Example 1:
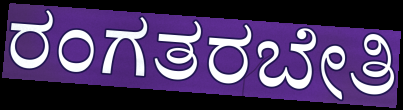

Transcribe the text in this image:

ರಂಗತರಬೇತಿ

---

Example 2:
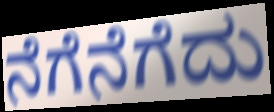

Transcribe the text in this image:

ನೆಗೆನೆಗೆದು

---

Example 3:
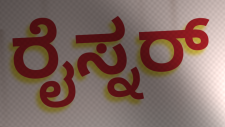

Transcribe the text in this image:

ರೈಸ್ನರ್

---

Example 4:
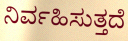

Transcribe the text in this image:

ನಿರ್ವಹಿಸುತ್ತದೆ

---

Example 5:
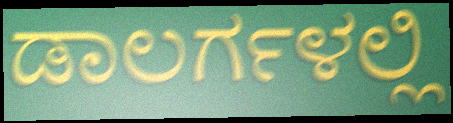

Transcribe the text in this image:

ಡಾಲರ್ಗಳಲ್ಲಿ